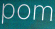
pom